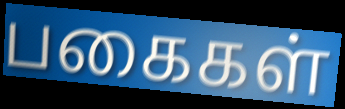
பகைகள்